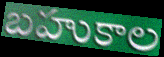
బహుకాల